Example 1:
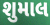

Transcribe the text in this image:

શુમાલ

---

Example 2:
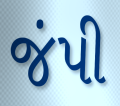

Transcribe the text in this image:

જંપી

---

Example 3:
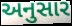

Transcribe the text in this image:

અનુસાર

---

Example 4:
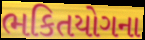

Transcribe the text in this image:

ભકિતયોગના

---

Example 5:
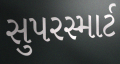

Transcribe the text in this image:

સુપરસ્માર્ટ